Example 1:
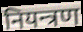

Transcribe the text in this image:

नियन्त्रण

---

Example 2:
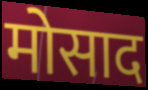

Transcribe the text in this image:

मोसाद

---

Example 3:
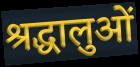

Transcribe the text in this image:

श्रद्धालुओं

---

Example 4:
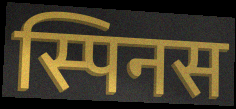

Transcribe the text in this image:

स्पिनस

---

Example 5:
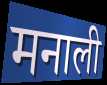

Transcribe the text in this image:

मनाली